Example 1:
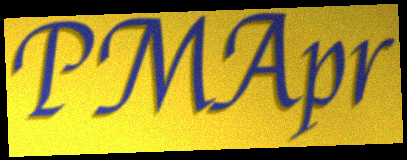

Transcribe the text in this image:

PMApr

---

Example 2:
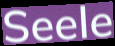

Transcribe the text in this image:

Seele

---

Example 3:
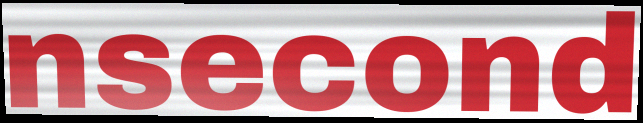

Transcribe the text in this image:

nsecond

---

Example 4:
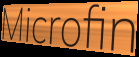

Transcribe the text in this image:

Microfin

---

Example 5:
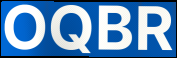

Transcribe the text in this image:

OQBR